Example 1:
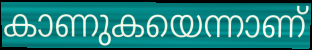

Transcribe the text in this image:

കാണുകയെന്നാണ്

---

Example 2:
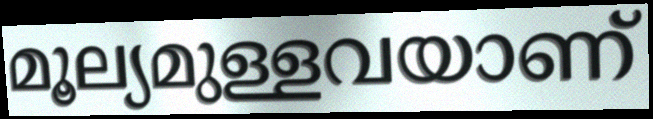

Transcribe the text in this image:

മൂല്യമുള്ളവയാണ്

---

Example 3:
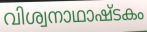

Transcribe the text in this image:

വിശ്വനാഥാഷ്ടകം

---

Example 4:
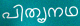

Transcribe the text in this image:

പിതൄനഥ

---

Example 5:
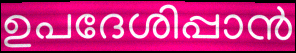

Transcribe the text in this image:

ഉപദേശിപ്പാൻ